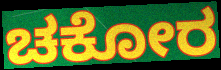
ಚಕೋರ